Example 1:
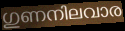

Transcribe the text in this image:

ഗുണനിലവാര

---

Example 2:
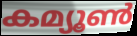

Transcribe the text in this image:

കമ്യൂൺ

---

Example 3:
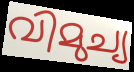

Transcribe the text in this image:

വിമുച്യ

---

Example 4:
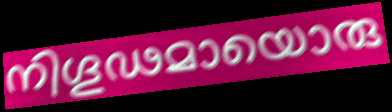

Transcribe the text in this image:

നിഗൂഢമായൊരു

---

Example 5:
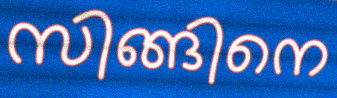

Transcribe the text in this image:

സിങ്ങിനെ